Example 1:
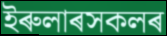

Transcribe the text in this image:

ইৰুলাৰসকলৰ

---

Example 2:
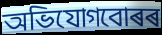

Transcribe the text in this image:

অভিযোগবোৰৰ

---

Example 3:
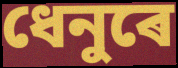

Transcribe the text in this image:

ধেনুৰে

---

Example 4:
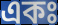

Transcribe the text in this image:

একঃ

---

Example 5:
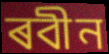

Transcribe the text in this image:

ৰবীন